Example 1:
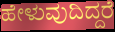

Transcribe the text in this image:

ಹೇಳುವುದಿದ್ದರೆ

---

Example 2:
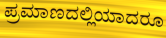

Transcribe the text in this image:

ಪ್ರಮಾಣದಲ್ಲಿಯಾದರೂ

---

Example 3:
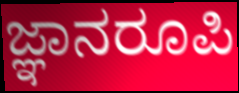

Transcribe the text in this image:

ಜ್ಞಾನರೂಪಿ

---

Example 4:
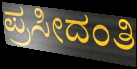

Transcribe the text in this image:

ಪ್ರಸೀದಂತಿ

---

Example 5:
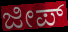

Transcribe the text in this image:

ಜೀಪ್